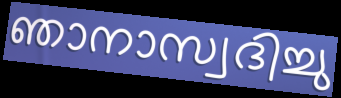
ഞാനാസ്വദിച്ചു